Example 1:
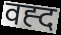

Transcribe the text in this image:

वह्द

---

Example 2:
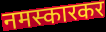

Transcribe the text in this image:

नमस्कारकर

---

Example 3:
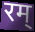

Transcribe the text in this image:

रम्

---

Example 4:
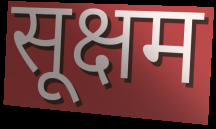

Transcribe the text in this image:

सूक्षम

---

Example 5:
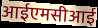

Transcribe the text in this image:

आईएमसीआई